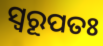
ସ୍ଵରୂପତଃ